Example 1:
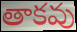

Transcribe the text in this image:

తాకవు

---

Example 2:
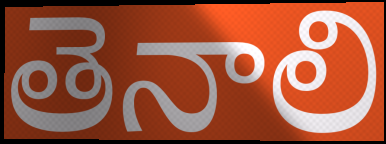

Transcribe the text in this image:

తెనాలి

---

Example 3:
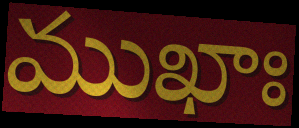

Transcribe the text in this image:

ముఖాః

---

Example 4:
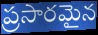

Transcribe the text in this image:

ప్రసారమైన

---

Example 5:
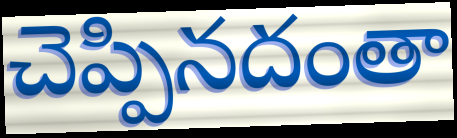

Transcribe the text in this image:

చెప్పినదంతా